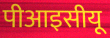
पीआइसीयू